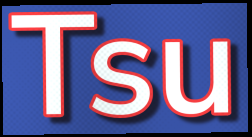
Tsu